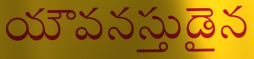
యౌవనస్తుడైన